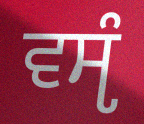
ਵਸੵੰ